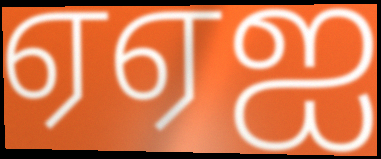
ஏஏஐ